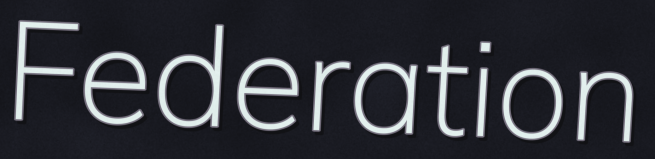
Federation